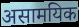
असामयिक